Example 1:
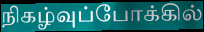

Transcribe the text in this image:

நிகழ்வுப்போக்கில்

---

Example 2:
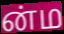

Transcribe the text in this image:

ன்ம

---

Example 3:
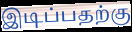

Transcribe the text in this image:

இடிப்பதற்கு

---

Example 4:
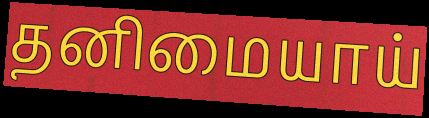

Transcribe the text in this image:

தனிமையாய்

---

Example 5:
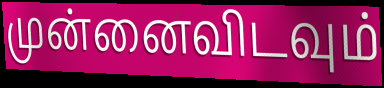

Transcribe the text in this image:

முன்னைவிடவும்